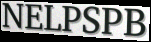
NELPSPB